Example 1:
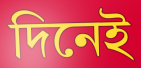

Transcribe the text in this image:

দিনেই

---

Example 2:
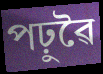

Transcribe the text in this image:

পঢ়ুৱৈ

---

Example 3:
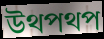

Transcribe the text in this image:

উথপথপ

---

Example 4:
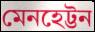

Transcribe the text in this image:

মেনহেট্টন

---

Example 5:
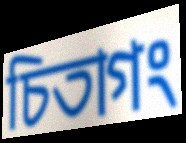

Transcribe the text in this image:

চিতাগং